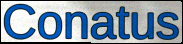
Conatus